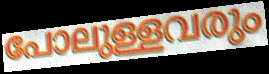
പോലുള്ളവരും